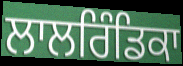
ਲਾਲਰਿੰਡਿਕਾ